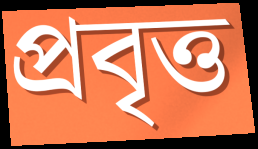
প্রবৃত্ত